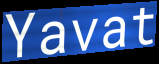
Yavat